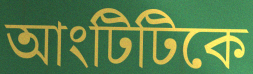
আংটিটিকে